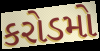
કરોડમો